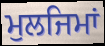
ਮੁਲਜਿਮਾਂ